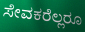
ಸೇವಕರೆಲ್ಲರೂ